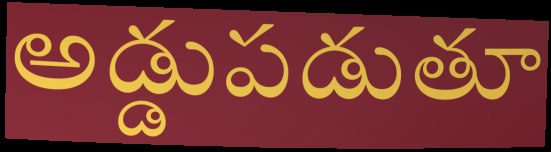
అడ్డుపడుతూ